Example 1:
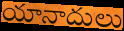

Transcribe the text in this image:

యానాదులు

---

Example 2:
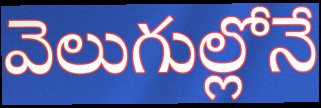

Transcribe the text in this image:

వెలుగుల్లోనే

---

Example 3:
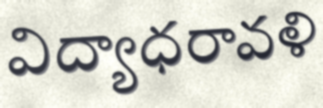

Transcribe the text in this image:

విద్యాధరావళి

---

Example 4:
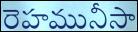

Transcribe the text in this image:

రెహమునీసా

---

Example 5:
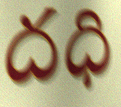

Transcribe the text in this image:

దధి